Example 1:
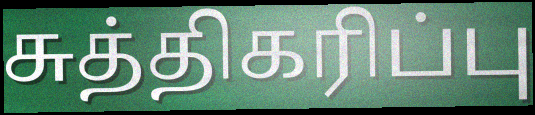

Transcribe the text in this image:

சுத்திகரிப்பு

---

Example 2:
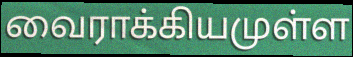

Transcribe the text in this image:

வைராக்கியமுள்ள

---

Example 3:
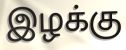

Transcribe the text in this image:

இழக்கு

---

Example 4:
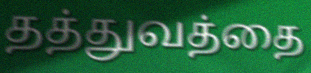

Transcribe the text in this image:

தத்துவத்தை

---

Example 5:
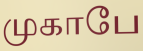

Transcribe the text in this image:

முகாபே